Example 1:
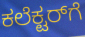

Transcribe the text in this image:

ಕಲೆಕ್ಟರ್‌ಗೆ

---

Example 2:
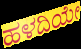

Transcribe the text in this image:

ಹಳದಿಯೇ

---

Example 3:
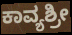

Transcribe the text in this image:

ಕಾವ್ಯಶ್ರೀ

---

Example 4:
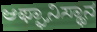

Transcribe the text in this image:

ಆಫ್ಘಾನಿಸ್ಥಾನ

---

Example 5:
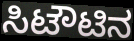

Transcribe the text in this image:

ಸಿಟೌಟಿನ